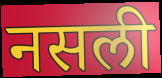
नसली